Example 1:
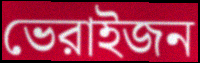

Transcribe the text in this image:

ভেরাইজন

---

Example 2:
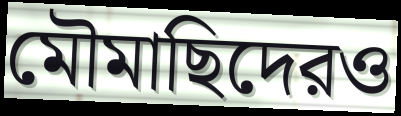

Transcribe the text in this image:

মৌমাছিদেরও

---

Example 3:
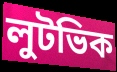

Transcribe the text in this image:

লুটভিক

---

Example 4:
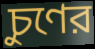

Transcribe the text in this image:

চুণের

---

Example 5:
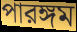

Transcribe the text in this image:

পারঙ্গম